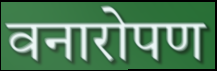
वनारोपण